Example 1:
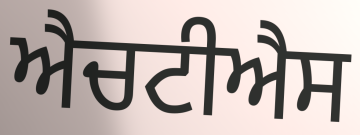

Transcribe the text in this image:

ਐਚਟੀਐਸ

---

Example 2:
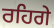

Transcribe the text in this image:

ਰਹਿਗੇ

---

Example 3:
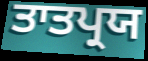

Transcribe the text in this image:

ਤਾਤਪ੍ਰਯ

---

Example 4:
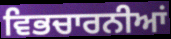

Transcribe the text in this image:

ਵਿਭਚਾਰਨੀਆਂ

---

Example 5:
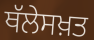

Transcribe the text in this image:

ਥੱਲੇਸਖ਼ਤ